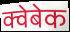
क्वेबेक